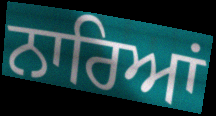
ਨਾਰਿਆਂ